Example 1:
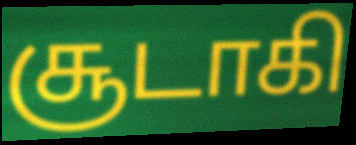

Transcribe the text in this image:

சூடாகி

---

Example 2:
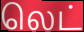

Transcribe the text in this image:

லெட்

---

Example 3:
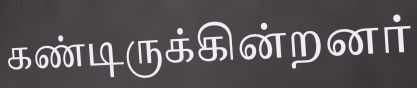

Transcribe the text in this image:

கண்டிருக்கின்றனர்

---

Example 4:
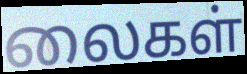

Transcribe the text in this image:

லைகள்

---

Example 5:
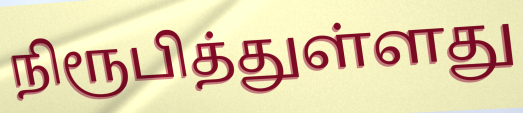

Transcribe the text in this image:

நிரூபித்துள்ளது